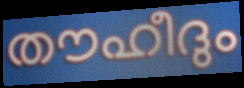
തൗഹീദും